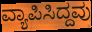
ವ್ಯಾಪಿಸಿದ್ದವು